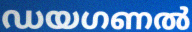
ഡയഗണൽ